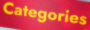
Categories